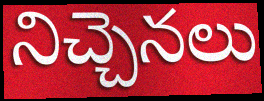
నిచ్చెనలు